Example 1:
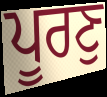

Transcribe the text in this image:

ਪੂਰਣੁ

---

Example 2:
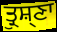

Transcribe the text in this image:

ਤ੍ਰੁਸ਼੍ਣਾ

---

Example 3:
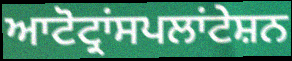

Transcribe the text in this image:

ਆਟੋਟ੍ਰਾਂਸਪਲਾਂਟੇਸ਼ਨ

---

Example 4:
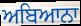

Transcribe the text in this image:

ਅਬਿਆਨਾ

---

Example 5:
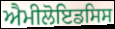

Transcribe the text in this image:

ਐਮੀਲੋਇਡਸਿਸ